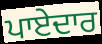
ਪਾਏਦਾਰ